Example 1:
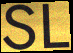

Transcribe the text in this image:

SL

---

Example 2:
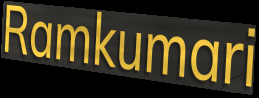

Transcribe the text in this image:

Ramkumari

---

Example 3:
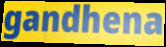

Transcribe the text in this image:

gandhena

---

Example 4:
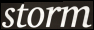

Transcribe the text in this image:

storm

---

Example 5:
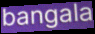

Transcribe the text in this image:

bangala